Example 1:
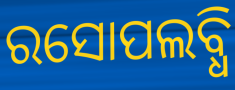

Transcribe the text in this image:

ରସୋପଲବ୍ଧି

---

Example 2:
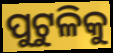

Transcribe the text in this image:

ପୁଟୁଳିକୁ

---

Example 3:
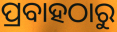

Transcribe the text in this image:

ପ୍ରବାହଠାରୁ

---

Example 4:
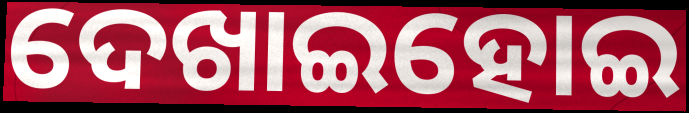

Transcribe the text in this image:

ଦେଖାଇହୋଇ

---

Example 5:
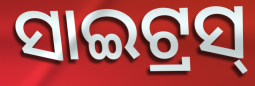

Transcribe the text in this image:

ସାଇଟ୍ରସ୍